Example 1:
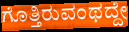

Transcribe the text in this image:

ಗೊತ್ತಿರುವಂಥದ್ದೇ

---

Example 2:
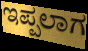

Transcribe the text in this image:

ಇಪ್ಪಲಾಗ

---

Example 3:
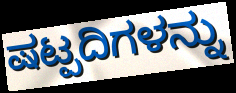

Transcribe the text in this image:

ಷಟ್ಪದಿಗಳನ್ನು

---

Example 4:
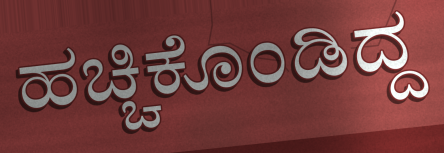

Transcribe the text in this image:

ಹಚ್ಚಿಕೊಂಡಿದ್ದ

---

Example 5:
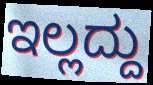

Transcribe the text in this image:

ಇಲ್ಲದ್ದು